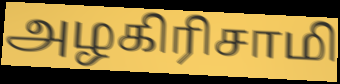
அழகிரிசாமி